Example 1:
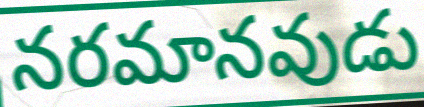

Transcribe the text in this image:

నరమానవుడు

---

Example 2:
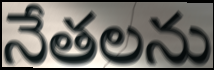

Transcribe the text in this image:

నేతలను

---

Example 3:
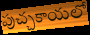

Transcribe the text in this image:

పుచ్చకాయలో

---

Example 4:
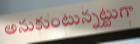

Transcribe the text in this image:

అనుకుంటున్నట్టుగా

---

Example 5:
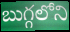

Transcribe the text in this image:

బుగ్గలోని